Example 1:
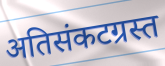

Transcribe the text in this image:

अतिसंकटग्रस्त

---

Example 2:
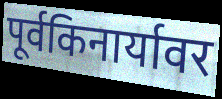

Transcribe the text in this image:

पूर्वकिनार्यावर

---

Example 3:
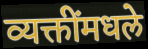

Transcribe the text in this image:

व्यक्तींमधले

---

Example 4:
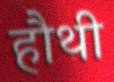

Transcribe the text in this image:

हौथी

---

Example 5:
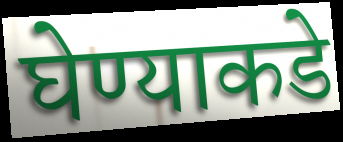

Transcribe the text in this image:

घेण्याकडे